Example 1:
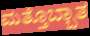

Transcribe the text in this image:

ಮತ್ತೊಬ್ಬಾತ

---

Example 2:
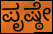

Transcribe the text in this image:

ಪೃಷ್ಠೇ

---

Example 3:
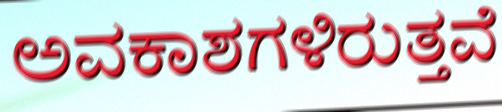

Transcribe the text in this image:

ಅವಕಾಶಗಳಿರುತ್ತವೆ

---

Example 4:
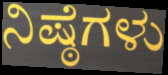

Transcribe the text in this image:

ನಿಷ್ಠೆಗಳು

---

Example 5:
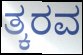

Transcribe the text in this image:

ತ್ಕರವ